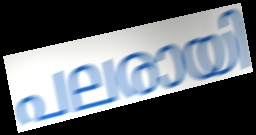
പലരായി